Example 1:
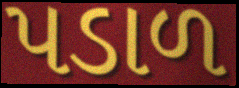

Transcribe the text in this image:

પડાળ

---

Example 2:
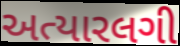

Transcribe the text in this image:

અત્યારલગી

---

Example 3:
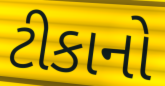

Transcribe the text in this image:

ટીકાનો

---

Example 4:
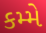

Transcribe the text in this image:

કમ્મે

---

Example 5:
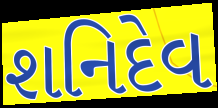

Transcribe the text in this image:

શનિદેવ